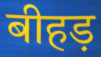
बीहड़